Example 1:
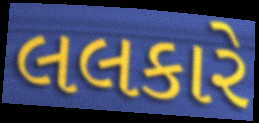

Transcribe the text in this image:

લલકારે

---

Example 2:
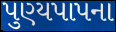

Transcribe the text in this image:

પુણ્યપાપના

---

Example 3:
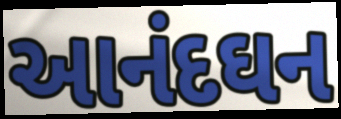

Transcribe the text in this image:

આનંદઘન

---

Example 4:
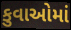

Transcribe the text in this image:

કુવાઓમાં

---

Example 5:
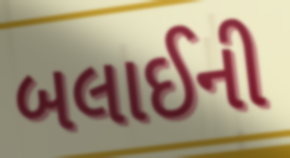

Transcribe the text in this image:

બલાઈની